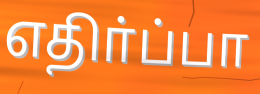
எதிர்ப்பா